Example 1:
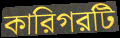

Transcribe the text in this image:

কারিগরটি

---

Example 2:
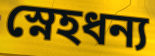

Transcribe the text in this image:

স্নেহধন্য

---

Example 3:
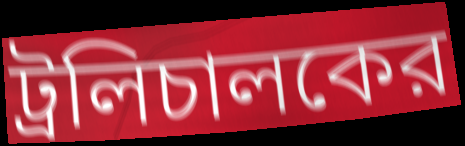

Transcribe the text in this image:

ট্রলিচালকের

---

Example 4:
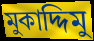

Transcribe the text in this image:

মুকাদ্দিমু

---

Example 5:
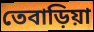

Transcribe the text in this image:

তেবাড়িয়া